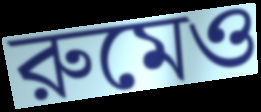
রুমেও